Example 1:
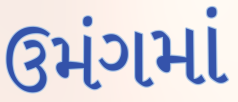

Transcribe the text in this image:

ઉમંગમાં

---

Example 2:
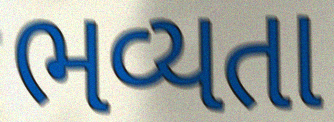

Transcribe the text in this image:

ભવ્યતા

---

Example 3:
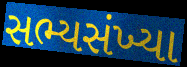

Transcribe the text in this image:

સભ્યસંખ્યા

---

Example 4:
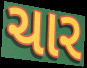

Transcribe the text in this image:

ચાર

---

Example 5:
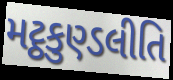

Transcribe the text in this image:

મટ્ઠકુણ્ડલીતિ